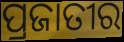
ପ୍ରଜାତୀର